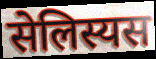
सेलिस्यस